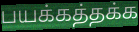
பயக்கத்தக்க